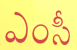
ఎంసీ